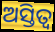
ଅସ୍ତିତ୍ଵ